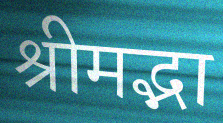
श्रीमद्भा